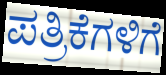
ಪತ್ರಿಕೆಗಳಿಗೆ